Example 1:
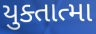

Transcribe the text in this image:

યુક્તાત્મા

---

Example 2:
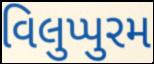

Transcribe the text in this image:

વિલુપ્પુરમ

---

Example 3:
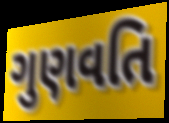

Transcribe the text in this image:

ગુણવતિ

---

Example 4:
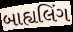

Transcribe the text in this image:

બાહ્યલિંગ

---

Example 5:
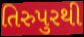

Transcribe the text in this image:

તિરુપુરથી